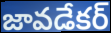
జావడేకర్